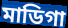
মাডিগা